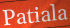
Patiala